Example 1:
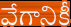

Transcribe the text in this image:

వేగానికీ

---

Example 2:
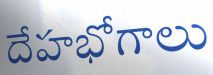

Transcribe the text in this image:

దేహభోగాలు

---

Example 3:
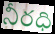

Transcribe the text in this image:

నీరధి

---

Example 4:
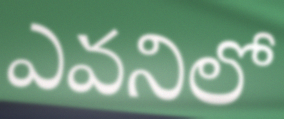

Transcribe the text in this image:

ఎవనిలో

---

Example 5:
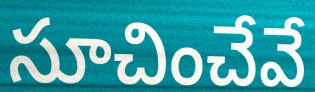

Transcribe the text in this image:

సూచించేవే